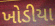
ખોડીયા